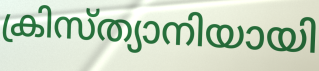
ക്രിസ്ത്യാനിയായി